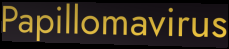
Papillomavirus